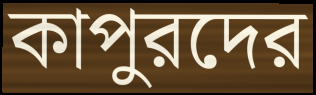
কাপুরদের